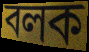
বলক